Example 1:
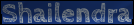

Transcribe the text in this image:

Shailendra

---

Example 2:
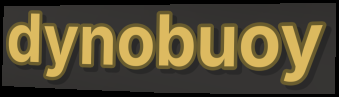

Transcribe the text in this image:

dynobuoy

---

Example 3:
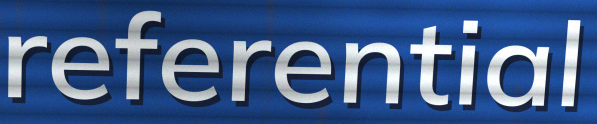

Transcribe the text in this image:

referential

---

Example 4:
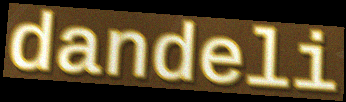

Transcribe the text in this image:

dandeli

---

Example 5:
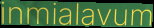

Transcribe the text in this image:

inmialavum